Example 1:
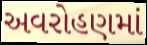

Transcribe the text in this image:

અવરોહણમાં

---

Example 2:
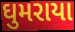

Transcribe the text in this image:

ઘુમરાયા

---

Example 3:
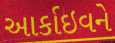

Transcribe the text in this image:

આર્કાઇવને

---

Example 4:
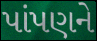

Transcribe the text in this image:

પાંપણને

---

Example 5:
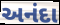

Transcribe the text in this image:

અનંદા